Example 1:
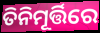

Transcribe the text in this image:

ତିନିମୂର୍ତ୍ତିରେ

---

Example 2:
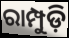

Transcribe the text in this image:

ରାମ୍ପୁଡ଼ି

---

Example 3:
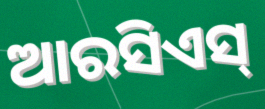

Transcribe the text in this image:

ଆରସିଏସ୍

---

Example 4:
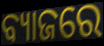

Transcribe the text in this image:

ବ୍ୟାଜରେ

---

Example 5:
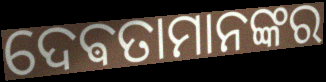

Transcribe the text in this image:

ଦେଵତାମାନଙ୍କର